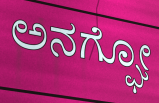
ಅನಗ್ಘೋ